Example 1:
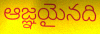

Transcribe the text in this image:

ఆజ్ఞయైనది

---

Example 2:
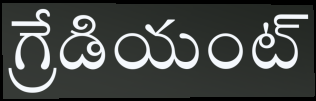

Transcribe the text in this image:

గ్రేడియంట్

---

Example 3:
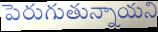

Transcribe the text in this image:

పెరుగుతున్నాయని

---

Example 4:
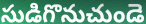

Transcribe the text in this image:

సుడిగొనుచుండె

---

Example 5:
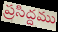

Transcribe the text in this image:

ప్రసిద్దము